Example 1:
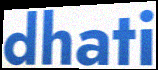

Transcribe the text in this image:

dhati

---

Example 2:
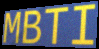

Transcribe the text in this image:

MBTI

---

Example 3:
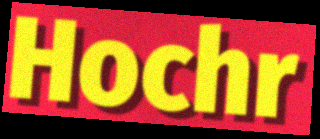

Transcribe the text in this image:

Hochr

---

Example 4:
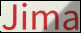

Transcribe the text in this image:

Jima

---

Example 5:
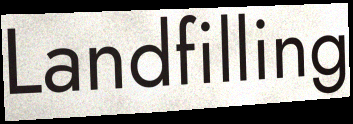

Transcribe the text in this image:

Landfilling